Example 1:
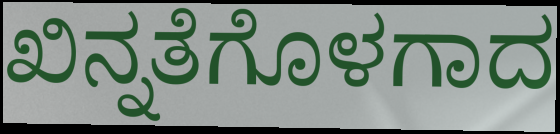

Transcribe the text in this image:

ಖಿನ್ನತೆಗೊಳಗಾದ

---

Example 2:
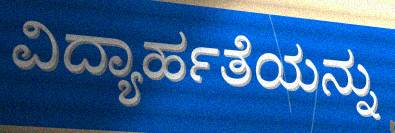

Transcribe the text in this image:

ವಿದ್ಯಾರ್ಹತೆಯನ್ನು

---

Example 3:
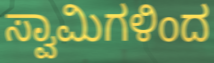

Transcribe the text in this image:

ಸ್ವಾಮಿಗಳಿಂದ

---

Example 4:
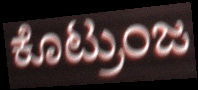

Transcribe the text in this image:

ಕೊಟ್ರುಂಜ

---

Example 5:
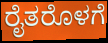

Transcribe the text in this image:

ರೈತರೊಳಗೆ